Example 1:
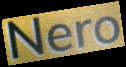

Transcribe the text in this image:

Nero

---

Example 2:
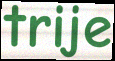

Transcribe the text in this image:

trije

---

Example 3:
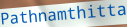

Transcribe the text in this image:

Pathnamthitta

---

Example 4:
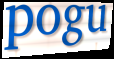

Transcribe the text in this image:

pogu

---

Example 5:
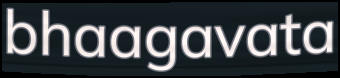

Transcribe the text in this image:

bhaagavata